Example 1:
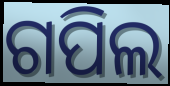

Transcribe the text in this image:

ଗପିଲ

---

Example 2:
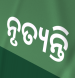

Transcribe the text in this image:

ନୃତ୍ୟନ୍ତି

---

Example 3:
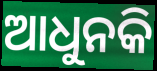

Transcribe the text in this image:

ଆଧୁନକି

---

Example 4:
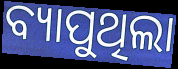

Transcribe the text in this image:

ବ୍ୟାପୁଥିଲା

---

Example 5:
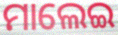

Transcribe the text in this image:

ମାଲେଇ